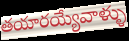
తయారయ్యేవాళ్ళు